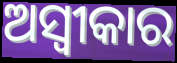
ଅସ୍ୱୀକାର